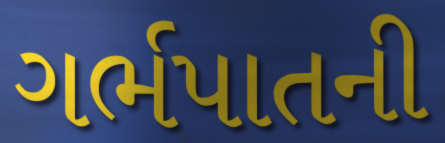
ગર્ભપાતની